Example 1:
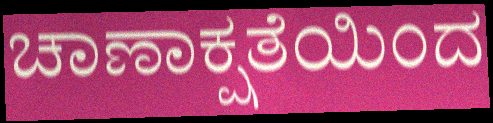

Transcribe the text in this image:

ಚಾಣಾಕ್ಷತೆಯಿಂದ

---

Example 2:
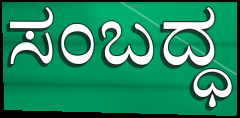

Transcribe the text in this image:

ಸಂಬದ್ಧ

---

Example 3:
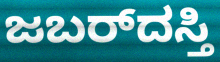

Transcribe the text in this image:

ಜಬರ್‌ದಸ್ತಿ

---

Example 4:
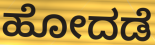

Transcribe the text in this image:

ಹೋದಡೆ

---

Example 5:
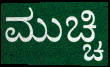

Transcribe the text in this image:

ಮುಚ್ಚಿ